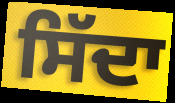
ਸਿੱਦਾ